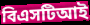
বিএসটিআই